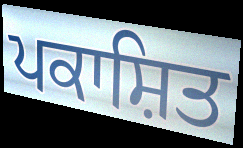
ਪਕਾਸ਼ਿਤ